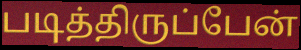
படித்திருப்பேன்